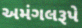
અમંગલરૂપે